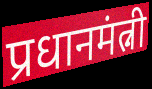
प्रधानमंत्नी